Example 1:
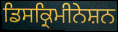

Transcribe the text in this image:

ਡਿਸਕ੍ਰਿਮੀਨੇਸ਼ਨ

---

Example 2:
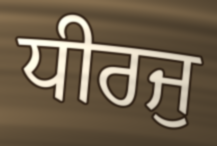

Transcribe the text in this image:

ਧੀਰਜੁ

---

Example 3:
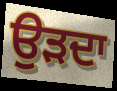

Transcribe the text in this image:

ਉੜਦਾ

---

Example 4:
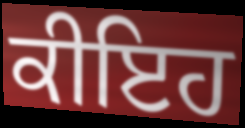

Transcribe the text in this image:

ਕੀਇਹ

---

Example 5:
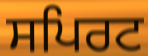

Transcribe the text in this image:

ਸਪਿਰਟ